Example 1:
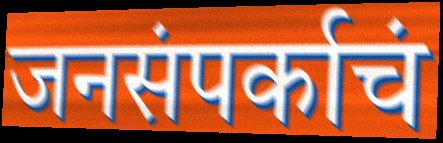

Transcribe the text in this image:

जनसंपर्काचं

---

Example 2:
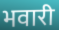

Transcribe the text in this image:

भवारी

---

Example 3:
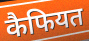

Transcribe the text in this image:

कैफियत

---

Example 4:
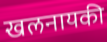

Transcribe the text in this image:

खलनायकी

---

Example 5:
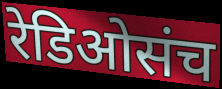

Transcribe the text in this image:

रेडिओसंच